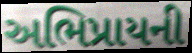
અભિપ્રાયની